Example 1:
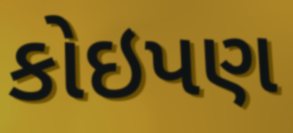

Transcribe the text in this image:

કોઇપણ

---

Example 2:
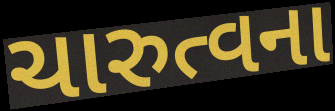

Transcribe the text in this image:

ચારુત્વના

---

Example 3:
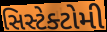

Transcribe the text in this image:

સિસ્ટેક્ટોમી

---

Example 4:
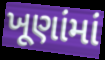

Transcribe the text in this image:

ખૂણાંમાં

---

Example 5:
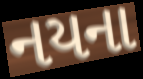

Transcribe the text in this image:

નયના